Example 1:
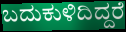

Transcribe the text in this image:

ಬದುಕುಳಿದಿದ್ದರೆ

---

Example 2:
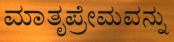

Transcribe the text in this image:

ಮಾತೃಪ್ರೇಮವನ್ನು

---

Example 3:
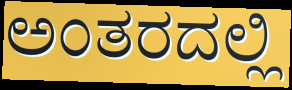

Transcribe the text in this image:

ಅಂತರದಲ್ಲಿ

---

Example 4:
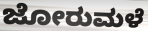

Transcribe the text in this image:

ಜೋರುಮಳೆ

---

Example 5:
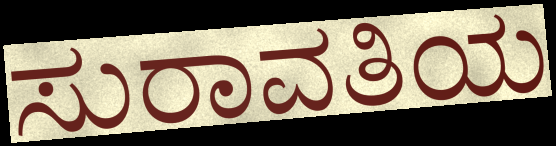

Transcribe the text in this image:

ಸುರಾವತಿಯ